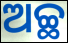
ଅଚ୍ଛ